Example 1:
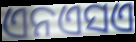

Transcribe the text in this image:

ଏନଏସଏ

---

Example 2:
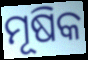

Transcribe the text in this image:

ମୂଷିକ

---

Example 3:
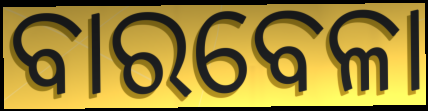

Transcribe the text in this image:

ବାରବେଳା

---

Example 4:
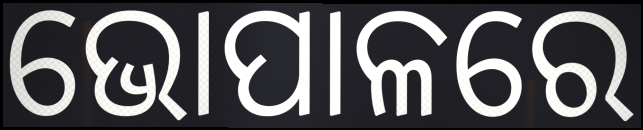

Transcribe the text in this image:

ଭୋପାଳରେ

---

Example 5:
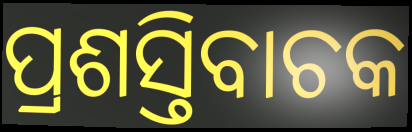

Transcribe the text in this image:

ପ୍ରଶସ୍ତିବାଚକ